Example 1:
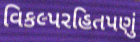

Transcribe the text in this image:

વિકલ્પરહિતપણું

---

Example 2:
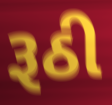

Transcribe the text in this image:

રૂઠી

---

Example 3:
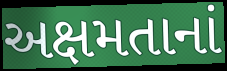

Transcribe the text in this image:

અક્ષમતાનાં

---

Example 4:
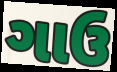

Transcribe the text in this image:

ગાઉ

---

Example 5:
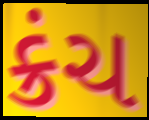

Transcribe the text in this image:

ક્રંચ